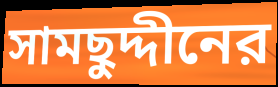
সামছুদ্দীনের